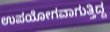
ಉಪಯೋಗವಾಗುತ್ತಿದ್ದ